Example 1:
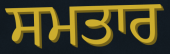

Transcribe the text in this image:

ਸਮਤਾਰ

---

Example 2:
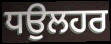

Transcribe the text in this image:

ਧਉਲਹਰ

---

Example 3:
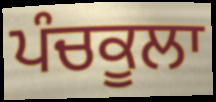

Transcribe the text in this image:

ਪੰਚਕੂਲਾ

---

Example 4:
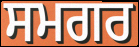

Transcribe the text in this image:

ਸਮਗਰ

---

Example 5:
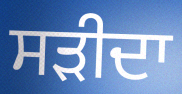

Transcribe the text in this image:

ਸੜੀਦਾ